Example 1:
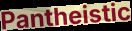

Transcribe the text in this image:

Pantheistic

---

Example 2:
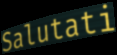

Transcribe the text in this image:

Salutati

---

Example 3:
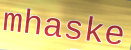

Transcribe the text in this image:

mhaske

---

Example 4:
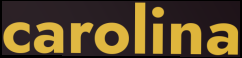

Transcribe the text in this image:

carolina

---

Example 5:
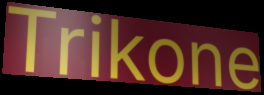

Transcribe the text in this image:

Trikone